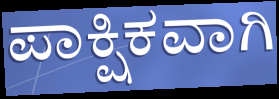
ಪಾಕ್ಷಿಕವಾಗಿ